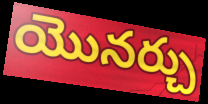
యొనర్చు